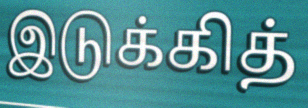
இடுக்கித்